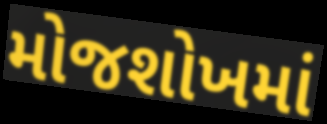
મોજશોખમાં